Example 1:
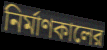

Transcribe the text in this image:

নির্মাণকালের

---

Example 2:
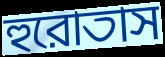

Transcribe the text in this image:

হুরোতাস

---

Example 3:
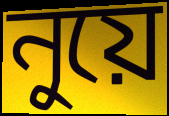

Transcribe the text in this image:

নুয়ে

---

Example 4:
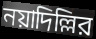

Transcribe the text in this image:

নয়াদিল্লির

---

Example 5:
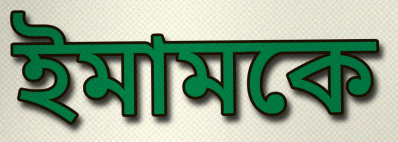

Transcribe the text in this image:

ইমামকে